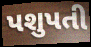
પશુપતી